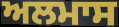
ਅਲਮਾਸ